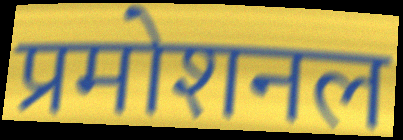
प्रमोशनल